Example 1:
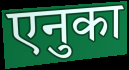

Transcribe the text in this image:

एनुका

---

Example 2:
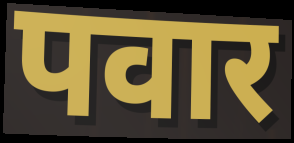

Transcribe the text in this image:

पवार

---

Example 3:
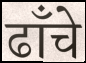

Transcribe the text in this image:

ढाँचे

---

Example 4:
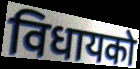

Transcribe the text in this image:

विधायको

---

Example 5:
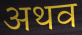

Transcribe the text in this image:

अथव